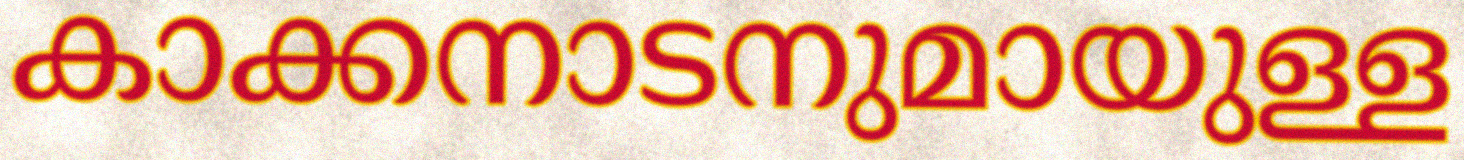
കാക്കനാടനുമായുള്ള